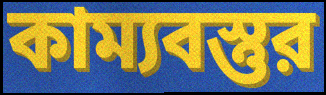
কাম্যবস্তুর